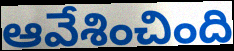
ఆవేశించింది